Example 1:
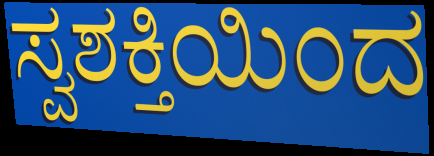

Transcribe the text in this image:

ಸ್ವಶಕ್ತಿಯಿಂದ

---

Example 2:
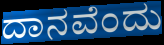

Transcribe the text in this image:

ದಾನವೆಂದು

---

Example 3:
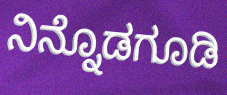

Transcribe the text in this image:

ನಿನ್ನೊಡಗೂಡಿ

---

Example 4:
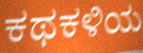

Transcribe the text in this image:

ಕಥಕಳಿಯ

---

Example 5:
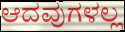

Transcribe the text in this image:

ಆದವುಗಳಲ್ಲ